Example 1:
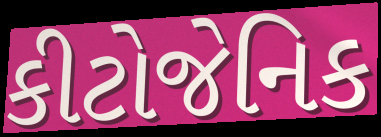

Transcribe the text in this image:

કીટોજેનિક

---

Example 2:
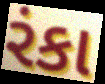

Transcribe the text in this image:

રંકા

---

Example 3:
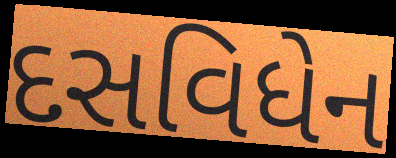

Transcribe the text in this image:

દસવિધેન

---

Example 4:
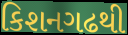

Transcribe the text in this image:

કિશનગઢથી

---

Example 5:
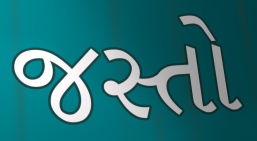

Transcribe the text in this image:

જસ્તો